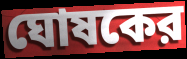
ঘোষকের